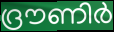
ദ്രൗണിർ